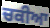
ਚਕੀਆ